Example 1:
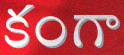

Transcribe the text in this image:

కంగా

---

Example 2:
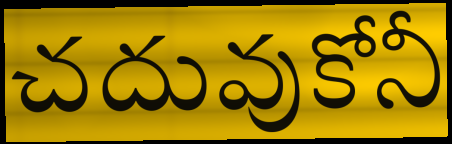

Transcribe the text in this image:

చదువుకోనీ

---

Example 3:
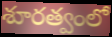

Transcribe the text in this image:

శూరత్వంలో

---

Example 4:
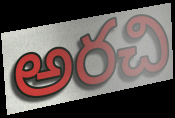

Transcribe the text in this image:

అరచి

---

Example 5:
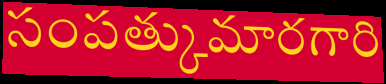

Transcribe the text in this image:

సంపత్కుమారగారి